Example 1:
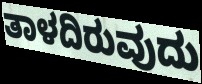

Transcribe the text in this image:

ತಾಳದಿರುವುದು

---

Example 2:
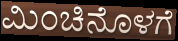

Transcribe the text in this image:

ಮಿಂಚಿನೊಳಗೆ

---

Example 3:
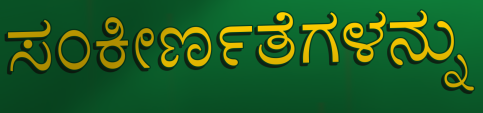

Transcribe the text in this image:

ಸಂಕೀರ್ಣತೆಗಳನ್ನು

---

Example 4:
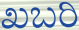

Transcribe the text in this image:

ಖಬರಿ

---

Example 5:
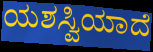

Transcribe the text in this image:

ಯಶಸ್ವಿಯಾದೆ